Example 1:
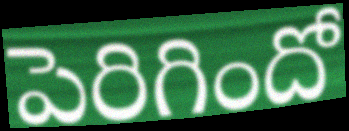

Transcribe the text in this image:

పెరిగిందో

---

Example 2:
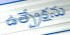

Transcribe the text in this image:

ఉత్ప్రేక్షను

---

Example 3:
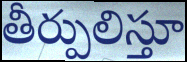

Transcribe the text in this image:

తీర్పులిస్తూ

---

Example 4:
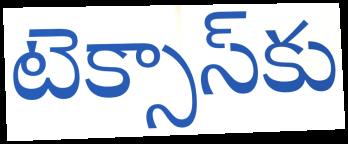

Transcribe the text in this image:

టెక్సాస్‌కు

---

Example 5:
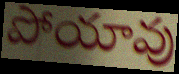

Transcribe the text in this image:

పోయావు